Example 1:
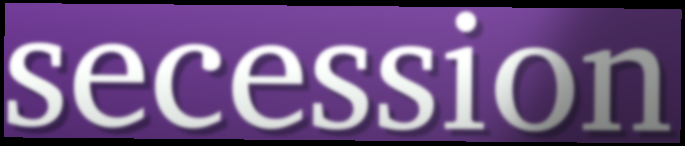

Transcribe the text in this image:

secession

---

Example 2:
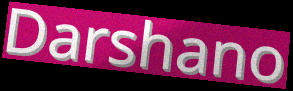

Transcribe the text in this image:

Darshano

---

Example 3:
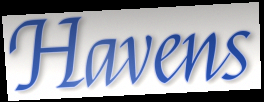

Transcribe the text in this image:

Havens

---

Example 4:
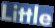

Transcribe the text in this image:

Little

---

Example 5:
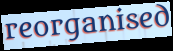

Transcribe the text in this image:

reorganised